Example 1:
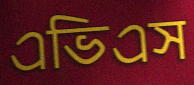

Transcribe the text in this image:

এভিএস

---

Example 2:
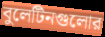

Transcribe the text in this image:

বুলেটিনগুলোর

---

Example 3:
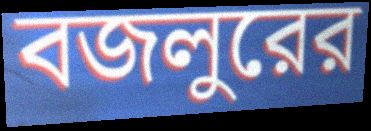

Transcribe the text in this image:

বজলুরের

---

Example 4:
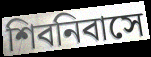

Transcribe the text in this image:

শিবনিবাসে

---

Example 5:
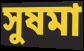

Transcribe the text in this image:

সুষমা